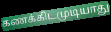
கணக்கிடமுடியாது